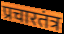
प्रचारतंत्र